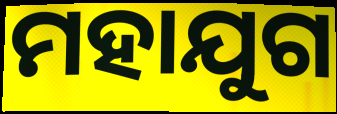
ମହାଯୁଗ